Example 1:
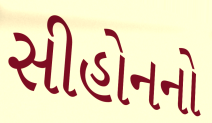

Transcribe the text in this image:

સીહોનનો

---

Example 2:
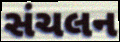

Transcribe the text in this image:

સંચલન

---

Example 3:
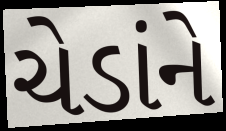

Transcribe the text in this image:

ચેડાંને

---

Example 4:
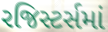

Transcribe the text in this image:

રજિસ્ટર્સમાં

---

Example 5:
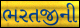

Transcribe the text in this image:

ભરતજીની